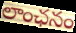
లాంఛనం